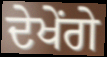
ਦੇਖੇਂਗੇ